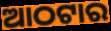
ଆଠଟାର